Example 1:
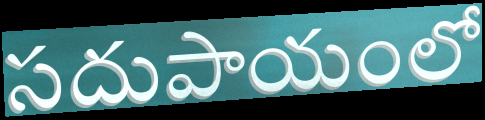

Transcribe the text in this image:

సదుపాయంలో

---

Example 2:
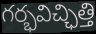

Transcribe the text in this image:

గర్భవిచ్ఛిత్తి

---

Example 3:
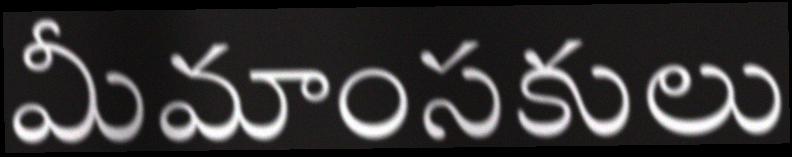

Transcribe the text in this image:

మీమాంసకులు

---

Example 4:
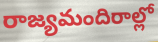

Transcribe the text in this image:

రాజ్యమందిరాల్లో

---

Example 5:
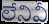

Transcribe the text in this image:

లేనివీ